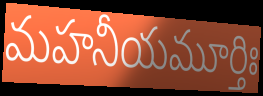
మహనీయమూర్తిః